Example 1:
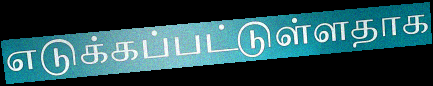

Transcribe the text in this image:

எடுக்கப்பட்டுள்ளதாக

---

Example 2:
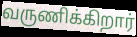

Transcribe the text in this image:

வருணிக்கிறார்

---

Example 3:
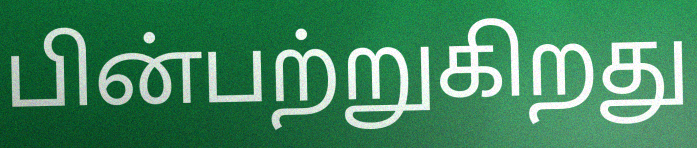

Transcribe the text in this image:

பின்பற்றுகிறது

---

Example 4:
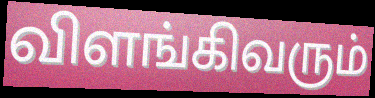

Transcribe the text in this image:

விளங்கிவரும்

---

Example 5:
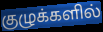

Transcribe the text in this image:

குழுக்களில்